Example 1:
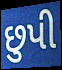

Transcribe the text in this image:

છુપી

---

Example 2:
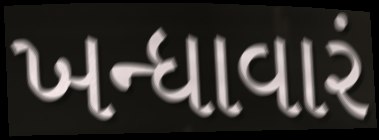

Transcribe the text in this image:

ખન્ધાવારં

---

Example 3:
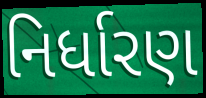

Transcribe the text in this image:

નિર્ધારણ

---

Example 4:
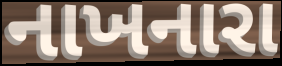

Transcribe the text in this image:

નાખનારા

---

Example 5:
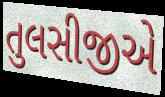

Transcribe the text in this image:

તુલસીજીએ